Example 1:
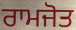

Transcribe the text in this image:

ਰਾਮਜੋਤ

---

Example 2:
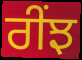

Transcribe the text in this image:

ਰੀਂਝ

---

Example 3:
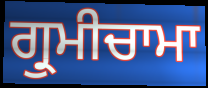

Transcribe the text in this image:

ਗ੍ਰੁਮੀਚਾਮਾ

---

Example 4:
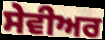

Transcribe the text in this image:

ਸੇਵੀਅਰ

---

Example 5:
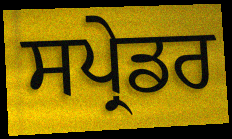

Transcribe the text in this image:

ਸਪ੍ਰੇਡਰ